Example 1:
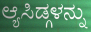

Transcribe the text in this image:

ಆ್ಯಸಿಡ್ಗಳನ್ನು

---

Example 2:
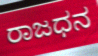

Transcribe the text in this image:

ರಾಜಧನ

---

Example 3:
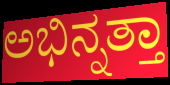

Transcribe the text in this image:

ಅಭಿನ್ನತ್ತಾ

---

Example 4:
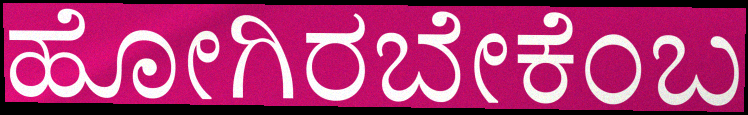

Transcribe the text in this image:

ಹೋಗಿರಬೇಕೆಂಬ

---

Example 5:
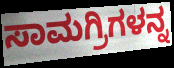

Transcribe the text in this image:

ಸಾಮಗ್ರಿಗಳನ್ನ